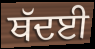
ਥੱਦਈ